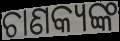
ଚାଣକ୍ୟଙ୍କ